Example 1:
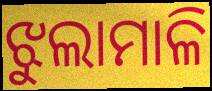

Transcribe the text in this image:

ଝୁଲାମାଳି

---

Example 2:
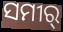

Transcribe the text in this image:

ସମୀର୍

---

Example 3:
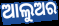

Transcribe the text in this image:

ଆଲୁଅର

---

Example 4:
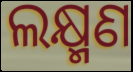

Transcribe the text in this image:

ଲକ୍ଷ୍ମଣ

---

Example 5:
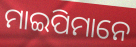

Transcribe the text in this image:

ମାଇପିମାନେ